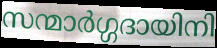
സന്മാർഗ്ഗദായിനി